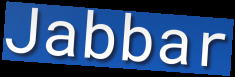
Jabbar